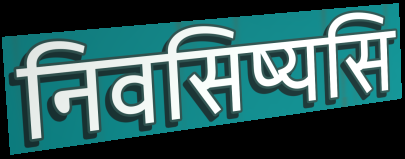
निवसिष्यसि